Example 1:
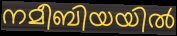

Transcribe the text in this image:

നമീബിയയിൽ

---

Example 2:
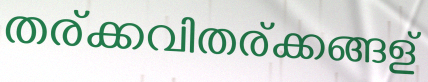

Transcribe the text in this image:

തര്ക്കവിതര്ക്കങ്ങള്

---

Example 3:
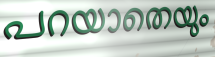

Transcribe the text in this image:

പറയാതെയും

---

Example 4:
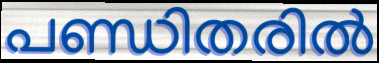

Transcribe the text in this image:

പണ്ഡിതരിൽ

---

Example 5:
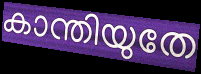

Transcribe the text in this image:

കാന്തിയുതേ